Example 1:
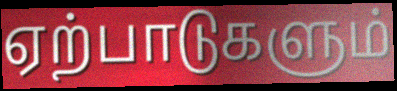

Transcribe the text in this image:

ஏற்பாடுகளும்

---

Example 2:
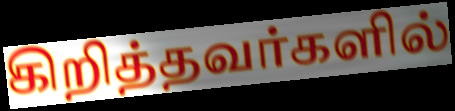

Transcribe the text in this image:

கிறித்தவர்களில்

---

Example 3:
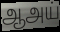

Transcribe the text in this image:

ஆஅய்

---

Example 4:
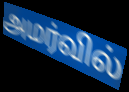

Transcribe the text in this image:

அமர்வில்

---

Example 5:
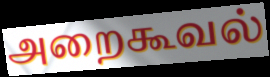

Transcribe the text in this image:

அறைகூவல்